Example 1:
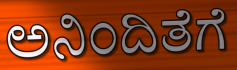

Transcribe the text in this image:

ಅನಿಂದಿತೆಗೆ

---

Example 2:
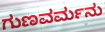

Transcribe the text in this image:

ಗುಣವರ್ಮನು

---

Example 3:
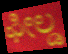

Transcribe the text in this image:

ಫೀಲ್ಡ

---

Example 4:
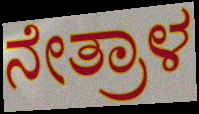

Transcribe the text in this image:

ನೇತ್ರಾಳ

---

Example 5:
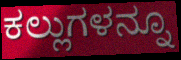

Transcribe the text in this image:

ಕಲ್ಲುಗಳನ್ನೂ